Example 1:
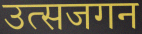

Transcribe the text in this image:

उत्सजगन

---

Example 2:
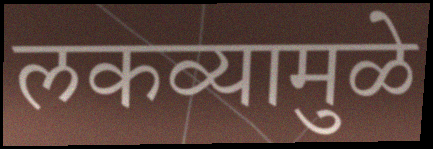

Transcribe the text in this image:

लकव्यामुळे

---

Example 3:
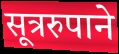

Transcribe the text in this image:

सूत्ररुपाने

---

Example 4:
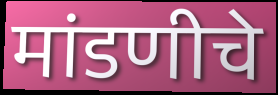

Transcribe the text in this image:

मांडणीचे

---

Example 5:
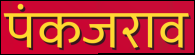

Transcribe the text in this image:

पंकजराव